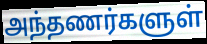
அந்தணர்களுள்